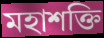
মহাশক্তি